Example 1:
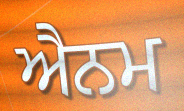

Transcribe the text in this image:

ਐਨਮ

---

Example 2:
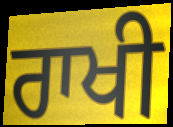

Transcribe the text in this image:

ਰਾਖੀ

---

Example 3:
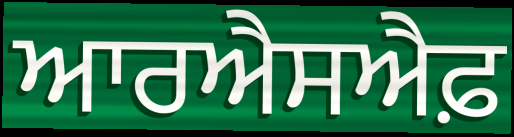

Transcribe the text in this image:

ਆਰਐਸਐਫ਼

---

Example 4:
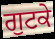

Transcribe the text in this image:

ਗੁਟਕੇ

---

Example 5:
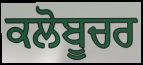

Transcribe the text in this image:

ਕਲੋਬੂਚਰ